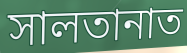
সালতানাত